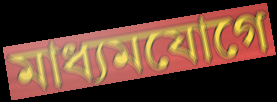
মাধ্যমযোগে